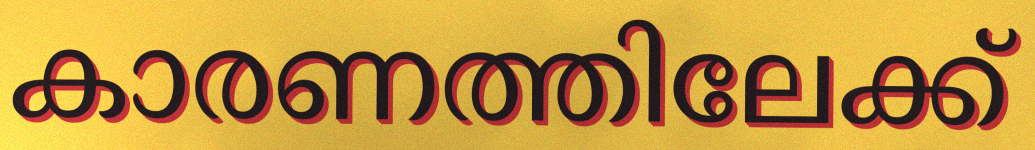
കാരണത്തിലേക്ക്